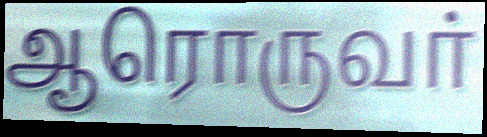
ஆரொருவர்